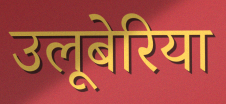
उलूबेरिया